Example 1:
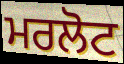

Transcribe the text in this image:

ਮਰਲੋਟ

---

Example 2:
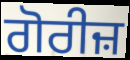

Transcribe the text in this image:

ਗੋਰੀਜ਼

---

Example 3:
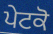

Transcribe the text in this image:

ਪੇਟਕੋ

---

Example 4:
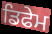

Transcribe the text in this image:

ਡਿਫੇਮ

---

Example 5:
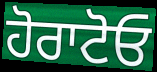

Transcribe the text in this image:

ਹੋਰਾਟੋਓ